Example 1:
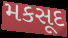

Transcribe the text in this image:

મકસૂદ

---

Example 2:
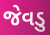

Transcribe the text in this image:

જેવડુ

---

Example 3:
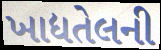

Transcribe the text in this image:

ખાદ્યતેલની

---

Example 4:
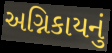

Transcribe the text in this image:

અગ્નિકાયનું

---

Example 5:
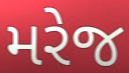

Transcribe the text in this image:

મરેજ